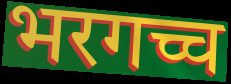
भरगच्च